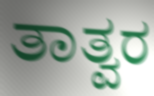
ತಾತ್ವರ